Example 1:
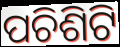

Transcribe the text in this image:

ପଚିଶିଟି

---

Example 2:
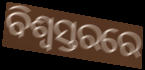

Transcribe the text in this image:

ବିଶ୍ୱସ୍ତରରେ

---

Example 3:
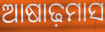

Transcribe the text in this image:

ଆଷାଢ଼ମାସ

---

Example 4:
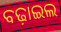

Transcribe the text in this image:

ବଢ଼ାଇଲ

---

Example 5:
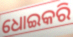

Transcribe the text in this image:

ଧୋଇକରି